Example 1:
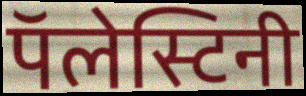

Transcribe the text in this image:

पॅलेस्टिनी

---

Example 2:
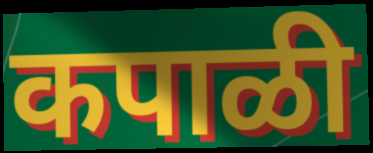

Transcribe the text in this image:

कपाळी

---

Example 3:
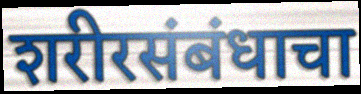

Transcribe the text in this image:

शरीरसंबंधाचा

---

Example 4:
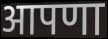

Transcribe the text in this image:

आपणा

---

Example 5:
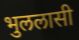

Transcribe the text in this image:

भुललासी